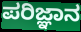
ಪರಿಜ್ಞಾನ